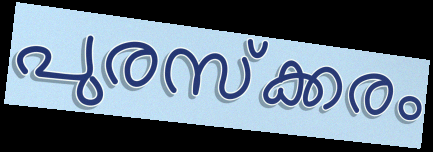
പുരസ്ക്കരം